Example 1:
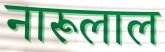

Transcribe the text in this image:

नारूलाल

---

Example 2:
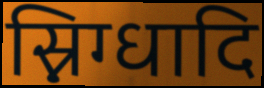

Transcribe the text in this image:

स्निग्धादि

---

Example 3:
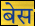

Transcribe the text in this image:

बेस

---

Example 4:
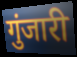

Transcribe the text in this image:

गुंजारी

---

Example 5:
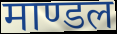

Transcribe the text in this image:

माण्डल